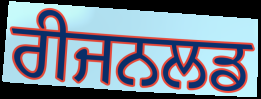
ਰੀਜਨਲਡ